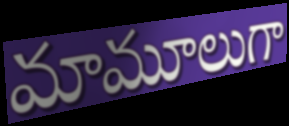
మామూలుగా